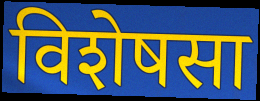
विशेषसा